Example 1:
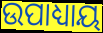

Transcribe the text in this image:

ଉପାଧ୍ୟାୟ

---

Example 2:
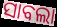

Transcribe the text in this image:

ସାବଲା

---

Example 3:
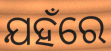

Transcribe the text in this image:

ଯହଁରେ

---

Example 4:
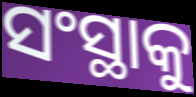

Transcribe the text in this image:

ସଂସ୍ଥାକୁ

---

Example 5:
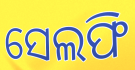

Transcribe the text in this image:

ସେଲଫି